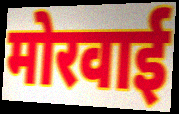
मोरवाई